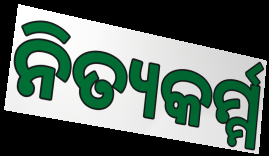
ନିତ୍ୟକର୍ମ୍ମ